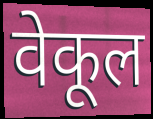
वेकूल